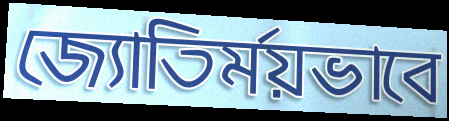
জ্যোতির্ময়ভাবে